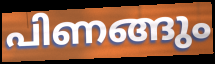
പിണങ്ങും